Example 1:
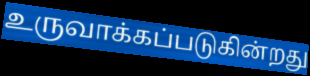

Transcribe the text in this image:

உருவாக்கப்படுகின்றது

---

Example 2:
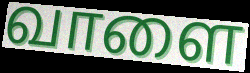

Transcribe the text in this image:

வாளை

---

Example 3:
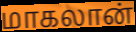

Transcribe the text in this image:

மாகலான்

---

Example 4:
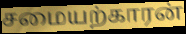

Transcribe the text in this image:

சமையற்காரன்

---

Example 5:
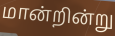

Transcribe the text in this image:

மான்றின்று